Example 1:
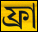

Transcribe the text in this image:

ফ্ৰা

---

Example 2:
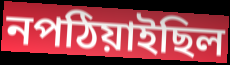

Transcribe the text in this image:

নপঠিয়াইছিল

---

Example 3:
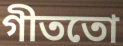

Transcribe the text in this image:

গীততো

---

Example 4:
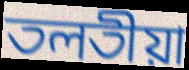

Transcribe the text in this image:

তলতীয়া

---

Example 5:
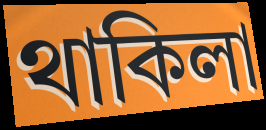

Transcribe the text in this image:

থাকিলা